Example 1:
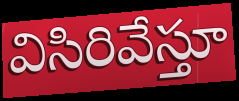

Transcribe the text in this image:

విసిరివేస్తూ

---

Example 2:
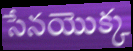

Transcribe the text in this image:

సేనయొక్క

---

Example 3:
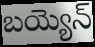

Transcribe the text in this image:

బయ్యెన్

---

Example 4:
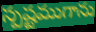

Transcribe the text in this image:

స్పష్టముగాను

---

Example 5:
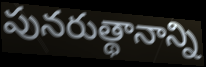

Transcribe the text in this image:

పునరుత్థానాన్ని